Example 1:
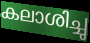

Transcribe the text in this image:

കലാശിച്ചു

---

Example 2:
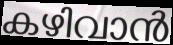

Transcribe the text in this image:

കഴിവാൻ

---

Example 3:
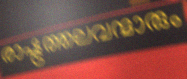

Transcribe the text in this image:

രാഷ്ട്രത്തലവന്മാരും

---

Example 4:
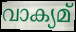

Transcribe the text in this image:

വാക്യമ്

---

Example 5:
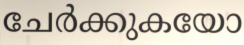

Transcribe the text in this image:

ചേർക്കുകയോ